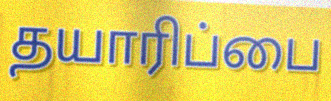
தயாரிப்பை